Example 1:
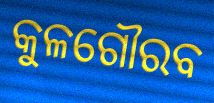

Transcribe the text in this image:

କୁଳଗୌରବ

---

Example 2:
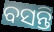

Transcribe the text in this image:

ବସନ୍ତି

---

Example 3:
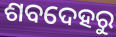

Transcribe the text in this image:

ଶବଦେହରୁ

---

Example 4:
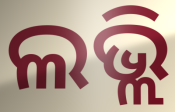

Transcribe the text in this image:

ଲଭ୍ଲି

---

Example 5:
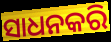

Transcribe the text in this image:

ସାଧନକରି